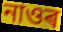
নাওৰ